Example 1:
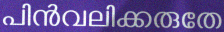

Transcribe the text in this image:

പിൻവലിക്കരുതേ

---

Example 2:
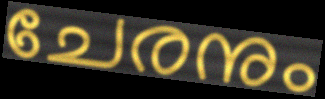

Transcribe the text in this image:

ചേരനും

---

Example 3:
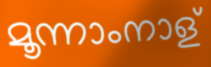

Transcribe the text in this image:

മൂന്നാംനാള്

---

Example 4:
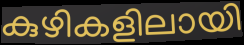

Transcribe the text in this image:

കുഴികളിലായി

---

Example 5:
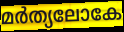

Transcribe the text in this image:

മർത്യലോകേ